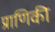
प्राणिकी